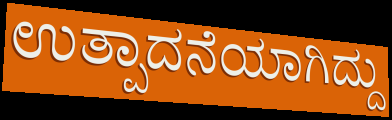
ಉತ್ಪಾದನೆಯಾಗಿದ್ದು